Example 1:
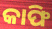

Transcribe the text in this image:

କାଫି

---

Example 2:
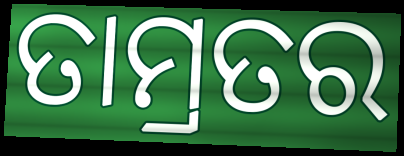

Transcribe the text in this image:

ତାମ୍ରତର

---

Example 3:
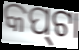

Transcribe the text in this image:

କପ୍‍ଟା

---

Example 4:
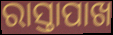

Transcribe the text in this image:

ରାସ୍ତାପାଖ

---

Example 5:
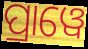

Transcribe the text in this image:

ପ୍ରାୱେ